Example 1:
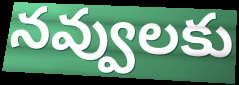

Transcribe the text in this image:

నవ్వులకు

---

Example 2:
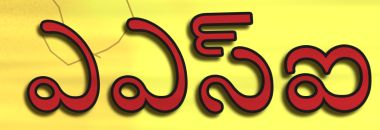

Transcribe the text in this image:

ఎఎస్ఐ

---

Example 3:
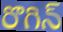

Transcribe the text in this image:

రొగిన్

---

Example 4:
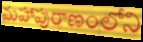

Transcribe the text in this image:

మహాపురాణంలోని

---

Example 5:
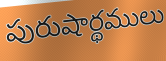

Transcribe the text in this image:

పురుషార్థములు